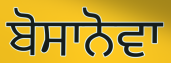
ਬੋਸਾਨੋਵਾ